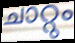
ചാറ്റും